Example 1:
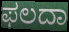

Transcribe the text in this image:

ಫಲದಾ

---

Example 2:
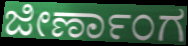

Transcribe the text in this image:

ಜೀರ್ಣಾಂಗ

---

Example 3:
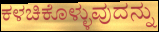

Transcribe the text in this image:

ಕಳಚಿಕೊಳ್ಳುವುದನ್ನು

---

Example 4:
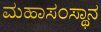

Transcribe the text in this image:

ಮಹಾಸಂಸ್ಥಾನ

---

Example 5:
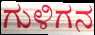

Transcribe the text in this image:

ಗುಳಿಗನ